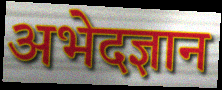
अभेदज्ञान